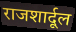
राजशार्दूल